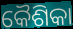
କୈଶିକା